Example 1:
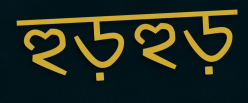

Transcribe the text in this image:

হুড়হুড়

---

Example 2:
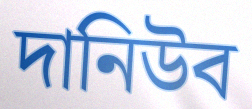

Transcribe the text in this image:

দানিউব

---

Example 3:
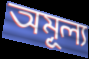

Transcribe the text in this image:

অমূল্য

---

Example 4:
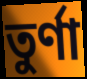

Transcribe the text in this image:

তুর্ণা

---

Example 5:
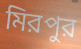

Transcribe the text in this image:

মিরপুর